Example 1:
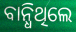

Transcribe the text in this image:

ବାନ୍ଧିଥିଲେ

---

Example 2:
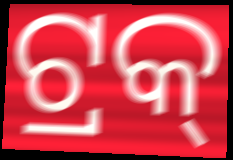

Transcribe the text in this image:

ଟ୍ରକ୍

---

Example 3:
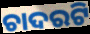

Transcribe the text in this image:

ଚାଦରଟି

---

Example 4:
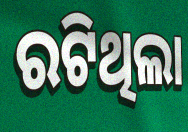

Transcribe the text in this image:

ରଟିଥିଲା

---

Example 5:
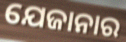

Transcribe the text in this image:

ଯେଜାନାର